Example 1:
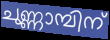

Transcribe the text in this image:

ചുണ്ണാമ്പിന്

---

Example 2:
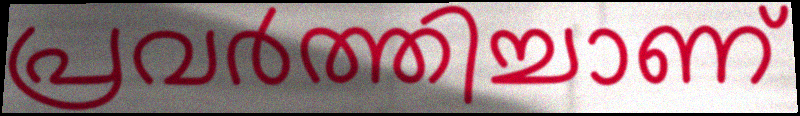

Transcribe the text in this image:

പ്രവർത്തിച്ചാണ്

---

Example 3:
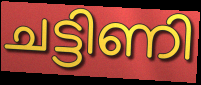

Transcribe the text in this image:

ചട്ടിണി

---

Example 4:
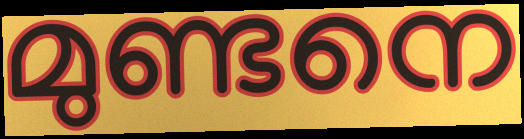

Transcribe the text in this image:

മുണ്ടനെ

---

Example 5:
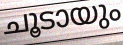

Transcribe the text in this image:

ചൂടായും